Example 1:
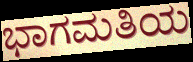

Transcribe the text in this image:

ಭಾಗಮತಿಯ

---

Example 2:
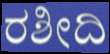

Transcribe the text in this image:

ರಶೀದಿ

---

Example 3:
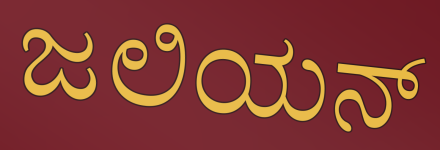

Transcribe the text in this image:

ಜಲಿಯನ್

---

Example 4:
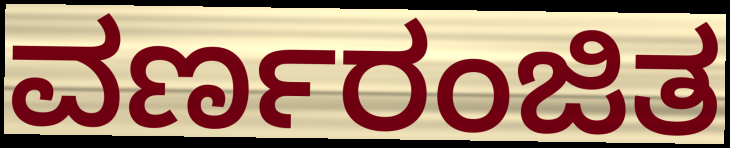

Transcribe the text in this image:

ವರ್ಣರಂಜಿತ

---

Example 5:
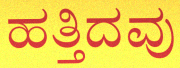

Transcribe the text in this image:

ಹತ್ತಿದವು